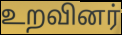
உறவினர்